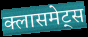
क्लासमेट्स